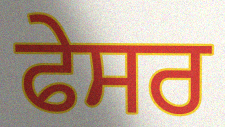
ਫੇਸਰ